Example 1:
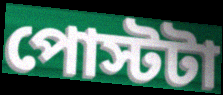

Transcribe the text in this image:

পোস্টটা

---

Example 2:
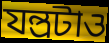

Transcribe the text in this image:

যন্ত্রটাও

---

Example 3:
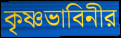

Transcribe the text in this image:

কৃষ্ণভাবিনীর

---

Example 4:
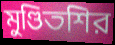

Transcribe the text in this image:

মুণ্ডিতশির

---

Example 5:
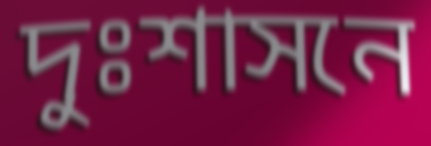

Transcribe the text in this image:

দুঃশাসনে